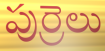
పుర్రెలు